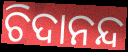
ଚିଦାନନ୍ଦ